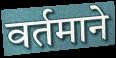
वर्तमाने